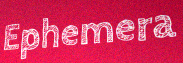
Ephemera